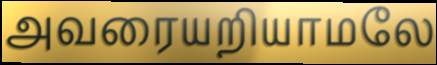
அவரையறியாமலே